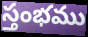
స్తంభము